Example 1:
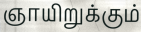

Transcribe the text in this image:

ஞாயிறுக்கும்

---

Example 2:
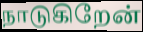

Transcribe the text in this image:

நாடுகிறேன்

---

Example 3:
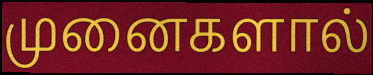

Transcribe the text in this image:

முனைகளால்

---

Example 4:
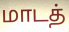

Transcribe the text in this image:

மாடத்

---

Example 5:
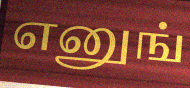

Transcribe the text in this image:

எனுங்